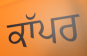
ਕਾੱਪਰ